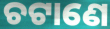
ଚଟାଣେ